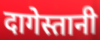
दागेस्तानी